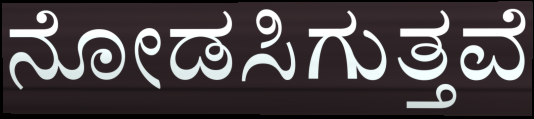
ನೋಡಸಿಗುತ್ತವೆ